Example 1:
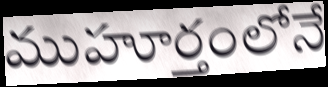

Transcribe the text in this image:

ముహూర్తంలోనే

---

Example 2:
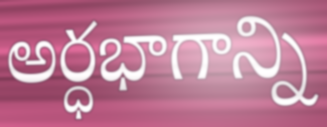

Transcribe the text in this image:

అర్ధభాగాన్ని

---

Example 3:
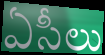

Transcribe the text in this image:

ఏసీలు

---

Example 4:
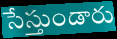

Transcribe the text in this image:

సేస్తుండారు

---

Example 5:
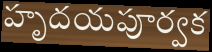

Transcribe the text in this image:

హృదయపూర్వక